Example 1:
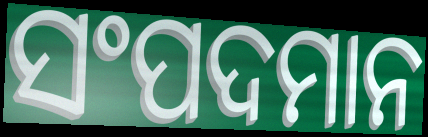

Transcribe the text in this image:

ସଂପଦମାନ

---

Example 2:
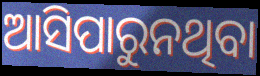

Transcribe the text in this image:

ଆସିପାରୁନଥିବା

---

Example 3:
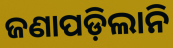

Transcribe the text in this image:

ଜଣାପଡ଼ିଲାନି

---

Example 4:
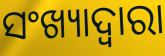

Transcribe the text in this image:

ସଂଖ୍ୟାଦ୍ଵାରା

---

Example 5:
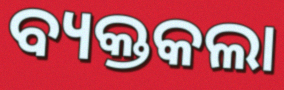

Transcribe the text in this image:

ବ୍ୟକ୍ତକଲା